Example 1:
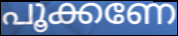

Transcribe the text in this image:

പൂക്കണേ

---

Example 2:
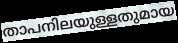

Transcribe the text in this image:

താപനിലയുള്ളതുമായ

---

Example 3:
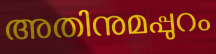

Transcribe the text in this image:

അതിനുമപ്പുറം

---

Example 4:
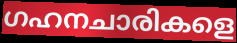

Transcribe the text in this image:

ഗഹനചാരികളെ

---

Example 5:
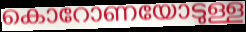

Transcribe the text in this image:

കൊറോണയോടുള്ള